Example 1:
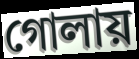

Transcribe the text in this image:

গোলায়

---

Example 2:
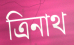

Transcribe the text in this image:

ত্রিনাথ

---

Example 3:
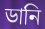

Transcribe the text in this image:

ডানি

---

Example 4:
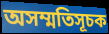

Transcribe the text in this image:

অসম্মতিসূচক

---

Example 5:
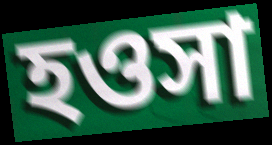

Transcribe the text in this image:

হওসা